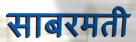
साबरमती